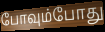
போவும்போது